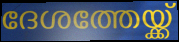
ദേശത്തേയ്ക്ക്